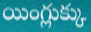
యింగ్లుక్కు